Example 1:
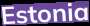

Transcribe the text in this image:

Estonia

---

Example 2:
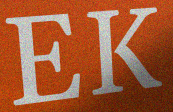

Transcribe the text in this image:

EK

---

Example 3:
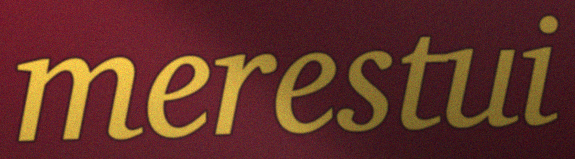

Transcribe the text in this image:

merestui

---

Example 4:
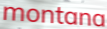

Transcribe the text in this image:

montana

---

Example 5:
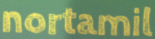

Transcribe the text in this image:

nortamil